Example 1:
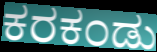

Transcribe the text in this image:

ಕರಕಂಡು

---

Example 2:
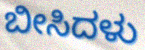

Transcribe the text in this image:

ಬೀಸಿದಳು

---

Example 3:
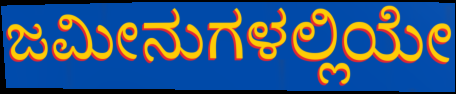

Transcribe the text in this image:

ಜಮೀನುಗಳಲ್ಲಿಯೇ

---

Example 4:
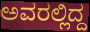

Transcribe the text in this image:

ಅವರಲ್ಲಿದ್ದ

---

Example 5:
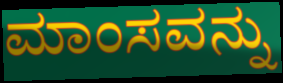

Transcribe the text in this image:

ಮಾಂಸವನ್ನು